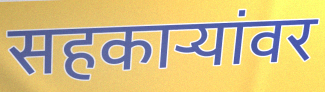
सहकार्‍यांवर